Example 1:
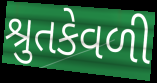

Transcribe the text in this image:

શ્રુતકેવળી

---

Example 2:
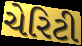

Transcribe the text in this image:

ચેરિટી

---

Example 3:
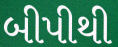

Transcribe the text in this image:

બીપીથી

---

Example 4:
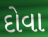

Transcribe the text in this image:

દોવા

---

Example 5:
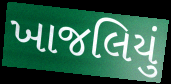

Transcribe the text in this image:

ખાજલિયું